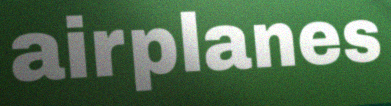
airplanes